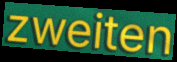
zweiten